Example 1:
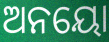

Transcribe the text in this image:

ଅନୟୋ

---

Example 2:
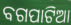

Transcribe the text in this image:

ବଗପାଟିଆ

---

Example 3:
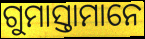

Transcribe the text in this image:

ଗୁମାସ୍ତାମାନେ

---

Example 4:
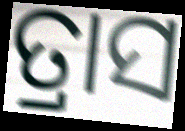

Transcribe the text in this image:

ତ୍ରାସ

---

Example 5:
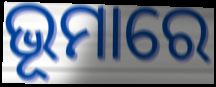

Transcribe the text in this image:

ଭୂମାରେ